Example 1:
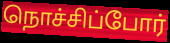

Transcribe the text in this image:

நொச்சிப்போர்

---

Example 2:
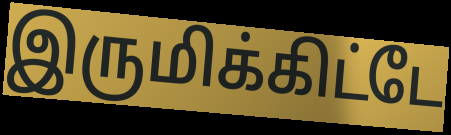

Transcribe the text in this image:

இருமிக்கிட்டே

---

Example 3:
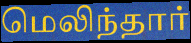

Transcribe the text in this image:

மெலிந்தார்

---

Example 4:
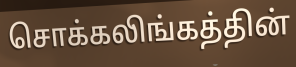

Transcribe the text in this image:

சொக்கலிங்கத்தின்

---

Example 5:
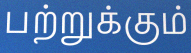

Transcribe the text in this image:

பற்றுக்கும்